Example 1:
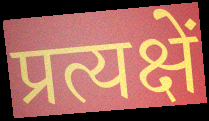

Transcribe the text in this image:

प्रत्यक्षें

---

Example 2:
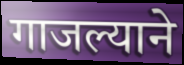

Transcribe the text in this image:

गाजल्याने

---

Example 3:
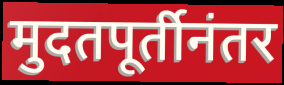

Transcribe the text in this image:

मुदतपूर्तीनंतर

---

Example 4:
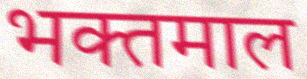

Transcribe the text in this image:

भक्तमाल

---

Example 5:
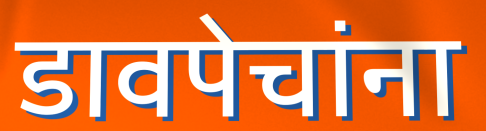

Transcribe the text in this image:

डावपेचांना